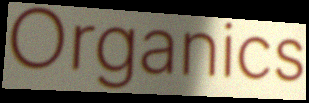
Organics